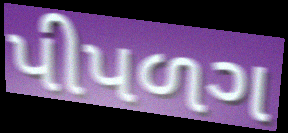
પીપળગ